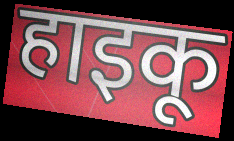
हाइकू